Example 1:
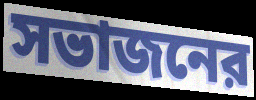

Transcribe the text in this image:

সভাজনের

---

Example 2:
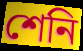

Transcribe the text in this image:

শেনি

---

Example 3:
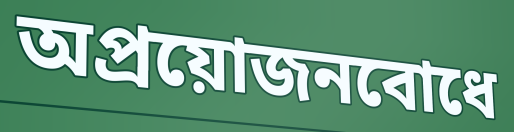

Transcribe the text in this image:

অপ্রয়োজনবোধে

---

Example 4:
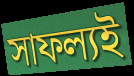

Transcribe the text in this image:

সাফল্যই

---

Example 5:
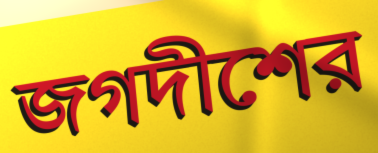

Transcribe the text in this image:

জগদীশের